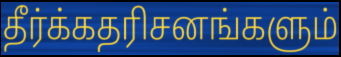
தீர்க்கதரிசனங்களும்